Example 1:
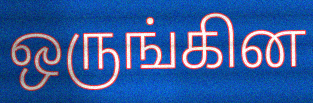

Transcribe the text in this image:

ஒருங்கின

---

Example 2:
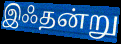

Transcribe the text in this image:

இஃதன்று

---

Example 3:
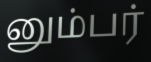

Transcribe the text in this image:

னும்பர்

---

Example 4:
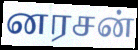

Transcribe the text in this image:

னரசன்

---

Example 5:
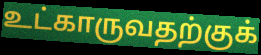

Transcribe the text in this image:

உட்காருவதற்குக்